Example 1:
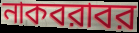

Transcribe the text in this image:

নাকবরাবর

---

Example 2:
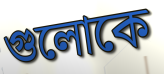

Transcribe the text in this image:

গুলোকে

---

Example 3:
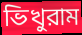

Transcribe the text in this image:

ভিখুরাম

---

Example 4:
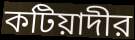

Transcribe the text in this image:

কটিয়াদীর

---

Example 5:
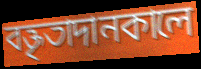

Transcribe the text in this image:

বক্তৃতাদানকালে